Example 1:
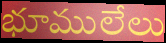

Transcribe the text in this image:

భూములేలు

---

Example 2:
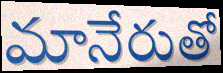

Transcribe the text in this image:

మానేరుతో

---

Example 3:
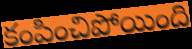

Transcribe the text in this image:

కంపించిపోయింది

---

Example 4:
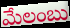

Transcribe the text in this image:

మేలంబు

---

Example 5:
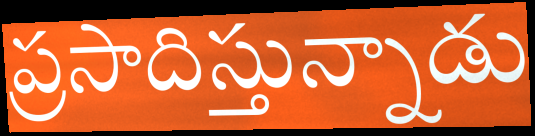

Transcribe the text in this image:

ప్రసాదిస్తున్నాడు